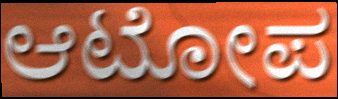
ಆಟೋಪ